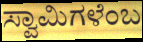
ಸ್ವಾಮಿಗಳೆಂಬ